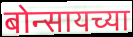
बोन्सायच्या